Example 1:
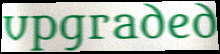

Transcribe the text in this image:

upgraded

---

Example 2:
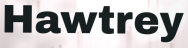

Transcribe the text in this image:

Hawtrey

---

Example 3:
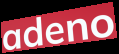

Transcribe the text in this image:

adeno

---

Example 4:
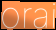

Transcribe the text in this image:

orai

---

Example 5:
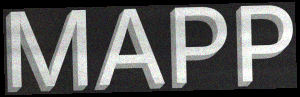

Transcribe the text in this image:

MAPP